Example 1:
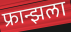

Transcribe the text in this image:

फ्रान्झला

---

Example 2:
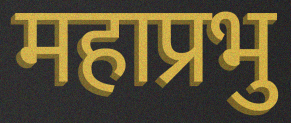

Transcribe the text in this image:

महाप्रभु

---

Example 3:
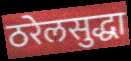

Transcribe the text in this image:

ठरेलसुद्धा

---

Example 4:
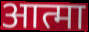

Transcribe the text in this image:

आत्मा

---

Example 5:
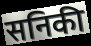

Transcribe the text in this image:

सनिकी